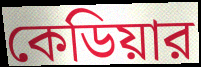
কেডিয়ার